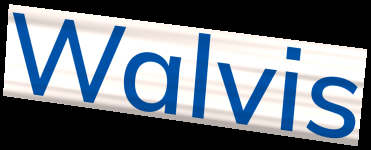
Walvis